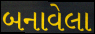
બનાવેલા